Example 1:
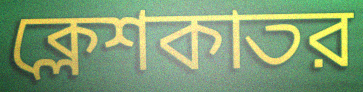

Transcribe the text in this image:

ক্লেশকাতর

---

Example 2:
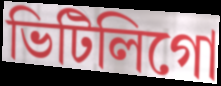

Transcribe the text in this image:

ভিটিলিগো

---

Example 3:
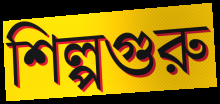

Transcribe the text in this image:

শিল্পগুরু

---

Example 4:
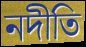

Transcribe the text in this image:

নদীতি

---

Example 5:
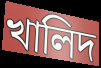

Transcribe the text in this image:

খালিদ